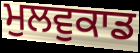
ਮੁਲਵੁਕਾਡ